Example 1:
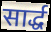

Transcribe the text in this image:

सार्द्ध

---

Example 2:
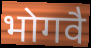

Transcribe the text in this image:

भोगवै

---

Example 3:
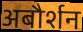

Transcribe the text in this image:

अबौर्शन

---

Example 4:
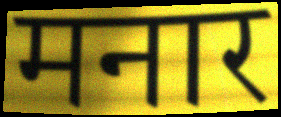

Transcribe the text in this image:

मनार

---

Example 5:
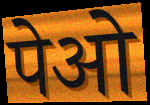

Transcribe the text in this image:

पेओ